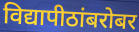
विद्यापीठांबरोबर